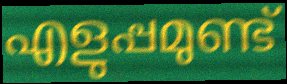
എളുപ്പമുണ്ട്